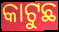
କାଟୁଛ